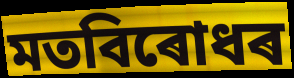
মতবিৰোধৰ